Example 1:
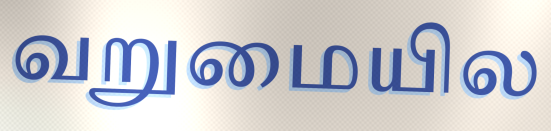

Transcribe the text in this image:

வறுமையில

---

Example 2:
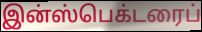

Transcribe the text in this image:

இன்ஸ்பெக்டரைப்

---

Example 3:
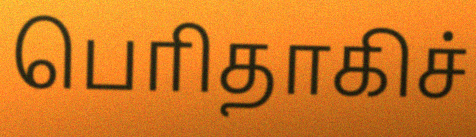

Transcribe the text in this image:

பெரிதாகிச்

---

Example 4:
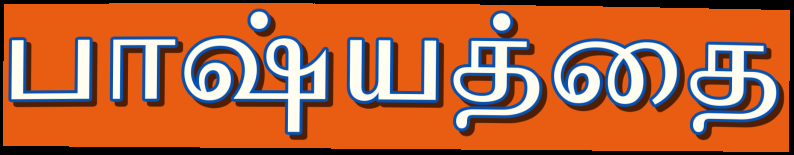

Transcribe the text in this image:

பாஷ்யத்தை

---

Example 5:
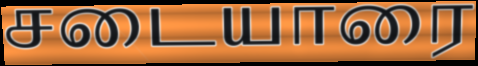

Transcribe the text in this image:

சடையாரை